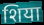
शिया